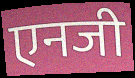
एनजी